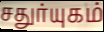
சதுர்யுகம்